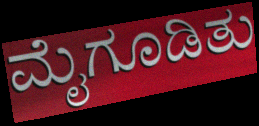
ಮೈಗೂಡಿತು